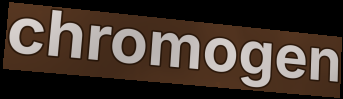
chromogen